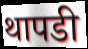
थापडी